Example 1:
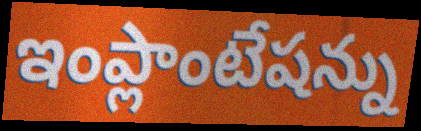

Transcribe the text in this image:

ఇంప్లాంటేషన్ను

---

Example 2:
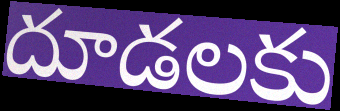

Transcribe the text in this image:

దూడలకు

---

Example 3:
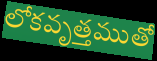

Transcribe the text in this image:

లోకవృత్తముతో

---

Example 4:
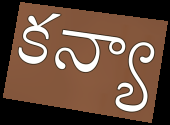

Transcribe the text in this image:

కన్యా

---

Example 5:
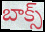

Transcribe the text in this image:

బాక్స్